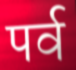
पर्व